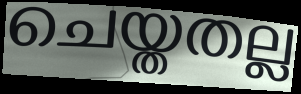
ചെയ്തതല്ല